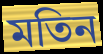
মতিন